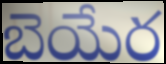
బెయేర